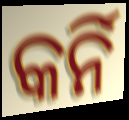
କର୍ନି